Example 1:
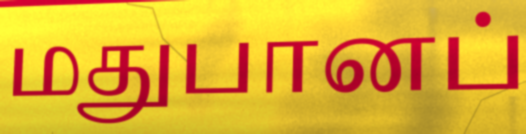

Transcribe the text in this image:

மதுபானப்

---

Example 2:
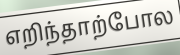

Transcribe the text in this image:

எறிந்தாற்போல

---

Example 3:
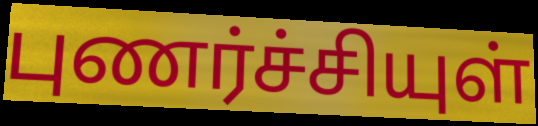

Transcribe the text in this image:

புணர்ச்சியுள்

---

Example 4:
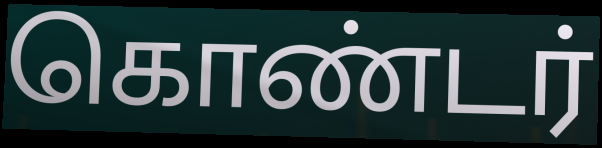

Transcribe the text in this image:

கொண்டர்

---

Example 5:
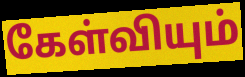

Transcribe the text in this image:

கேள்வியும்